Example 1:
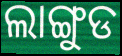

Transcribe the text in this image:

ଲାଙ୍ଗୁଡ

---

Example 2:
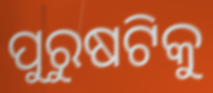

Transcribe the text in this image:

ପୁରୁଷଟିକୁ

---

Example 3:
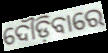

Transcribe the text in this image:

ଦୌଡ଼ିବାରେ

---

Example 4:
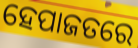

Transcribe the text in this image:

ହେପାଜତରେ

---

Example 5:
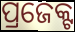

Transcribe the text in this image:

ପ୍ରଜେକ୍ଟ